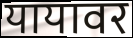
यायावर